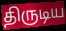
திருடிய